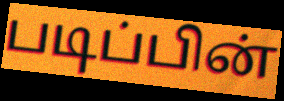
படிப்பின்